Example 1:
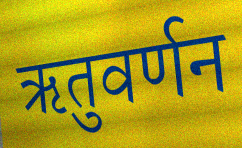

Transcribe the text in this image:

ऋतुवर्णन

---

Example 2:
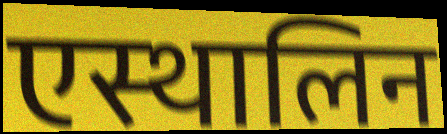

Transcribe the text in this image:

एस्थालिन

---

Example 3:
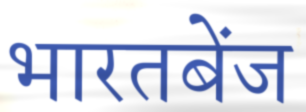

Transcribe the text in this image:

भारतबेंज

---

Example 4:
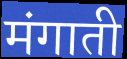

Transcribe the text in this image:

मंगाती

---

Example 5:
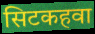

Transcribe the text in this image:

सिटकहवा